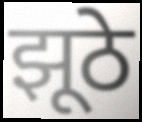
झूठे